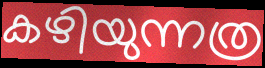
കഴിയുന്നത്ര